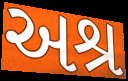
અશ્ર